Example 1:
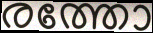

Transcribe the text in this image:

രത്തോ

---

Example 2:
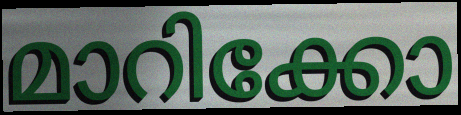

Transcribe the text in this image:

മാറിക്കോ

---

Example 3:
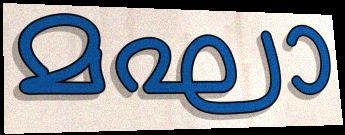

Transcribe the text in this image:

മഘാ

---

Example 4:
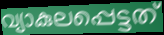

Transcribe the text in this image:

വ്യാകുലപ്പെട്ടത്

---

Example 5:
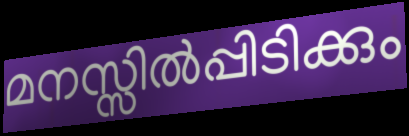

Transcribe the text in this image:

മനസ്സിൽപ്പിടിക്കും